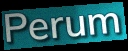
Perum